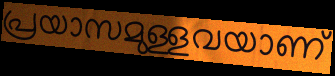
പ്രയാസമുള്ളവയാണ്